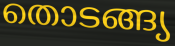
തൊടങ്ങ്യ